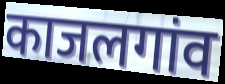
काजलगांव